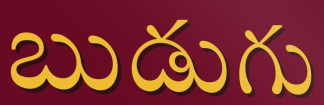
బుడుగు